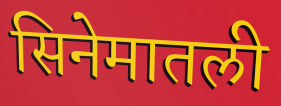
सिनेमातली